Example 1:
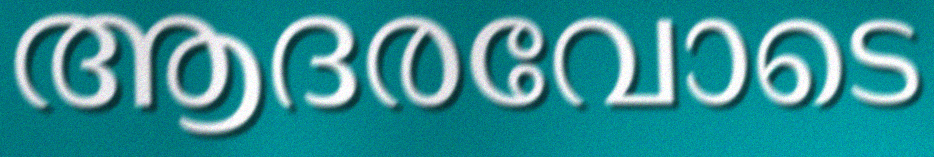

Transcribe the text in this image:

ആദരവോടെ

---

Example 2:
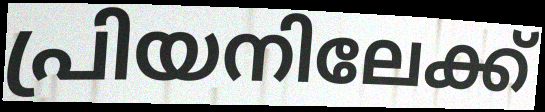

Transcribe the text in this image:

പ്രിയനിലേക്ക്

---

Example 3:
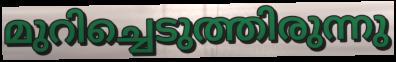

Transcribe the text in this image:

മുറിച്ചെടുത്തിരുന്നു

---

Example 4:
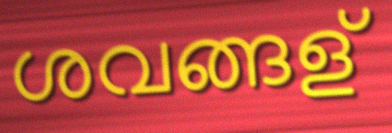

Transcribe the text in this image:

ശവങ്ങള്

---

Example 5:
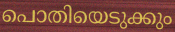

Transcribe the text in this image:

പൊതിയെടുക്കും